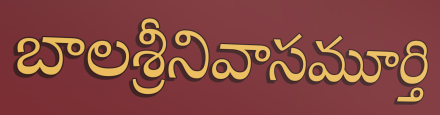
బాలశ్రీనివాసమూర్తి